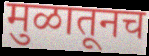
मुळातूनच